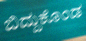
ಬಿದ್ದುಕೊಂಡ